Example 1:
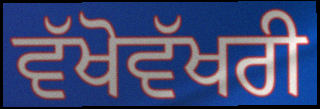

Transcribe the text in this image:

ਵੱਖੋਵੱਖਰੀ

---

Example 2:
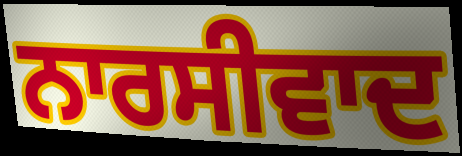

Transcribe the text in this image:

ਨਾਰਸੀਵਾਦ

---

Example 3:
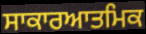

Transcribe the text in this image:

ਸਾਕਾਰਆਤਮਿਕ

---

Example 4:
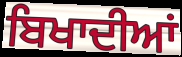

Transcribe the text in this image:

ਬਿਖਾਦੀਆਂ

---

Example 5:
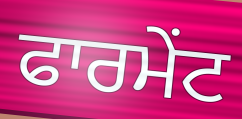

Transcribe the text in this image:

ਫਾਰਮੇਂਟ